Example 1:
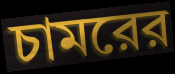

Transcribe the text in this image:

চামরের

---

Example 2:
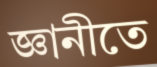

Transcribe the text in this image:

জ্ঞানীতে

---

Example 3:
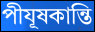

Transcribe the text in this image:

পীযূষকান্তি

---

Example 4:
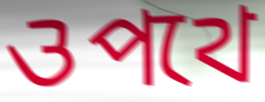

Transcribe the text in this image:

ওপথে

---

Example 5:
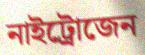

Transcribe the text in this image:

নাইট্রোজেন